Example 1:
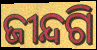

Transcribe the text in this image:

ଜୀନ୍ଦଗି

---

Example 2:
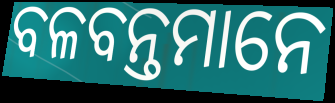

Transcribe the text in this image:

ବଳବନ୍ତମାନେ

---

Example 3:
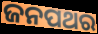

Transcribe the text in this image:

ଜନପଥର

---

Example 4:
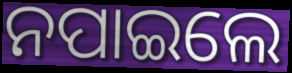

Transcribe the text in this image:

ନପାଇଲେ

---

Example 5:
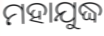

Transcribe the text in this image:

ମହାଯୁଦ୍ଧ